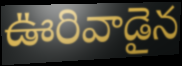
ఊరివాడైన